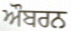
ਔਬਰਨ